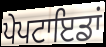
ਪੇਪਟਾਇਡਾਂ